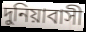
দুনিয়াবাসী